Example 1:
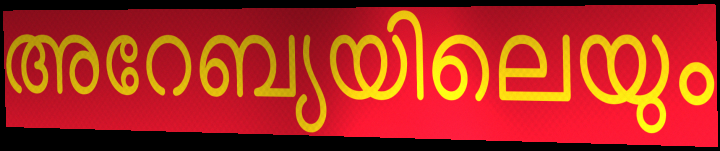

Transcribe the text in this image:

അറേബ്യയിലെയും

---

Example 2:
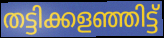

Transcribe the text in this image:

തട്ടിക്കളഞ്ഞിട്ട്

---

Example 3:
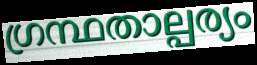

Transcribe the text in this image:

ഗ്രന്ഥതാല്പര്യം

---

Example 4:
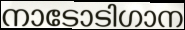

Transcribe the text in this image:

നാടോടിഗാന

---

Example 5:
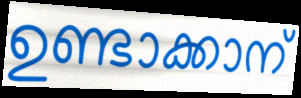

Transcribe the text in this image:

ഉണ്ടാക്കാന്